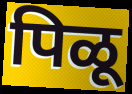
पिळू